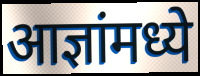
आज्ञांमध्ये